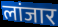
लांजार